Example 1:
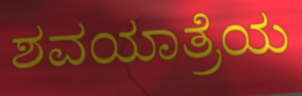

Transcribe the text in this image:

ಶವಯಾತ್ರೆಯ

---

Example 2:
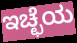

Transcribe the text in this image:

ಇಚ್ಛೆಯ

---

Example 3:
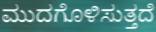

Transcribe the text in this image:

ಮುದಗೊಳಿಸುತ್ತದೆ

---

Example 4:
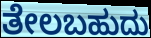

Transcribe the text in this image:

ತೇಲಬಹುದು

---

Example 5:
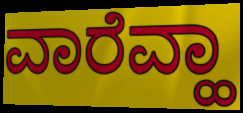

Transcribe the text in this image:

ವಾರೆವ್ಹಾ